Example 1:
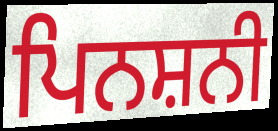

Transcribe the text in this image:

ਪਿਨਸ਼ਨੀ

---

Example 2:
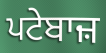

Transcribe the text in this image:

ਪਟੇਬਾਜ਼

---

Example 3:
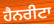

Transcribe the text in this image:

ਹੈਨਰੀਟਾ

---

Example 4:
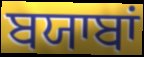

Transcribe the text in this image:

ਬਯਾਬਾਂ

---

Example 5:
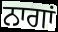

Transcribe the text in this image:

ਨਾਗਾਂ